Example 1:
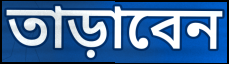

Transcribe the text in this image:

তাড়াবেন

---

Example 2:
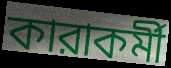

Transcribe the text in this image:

কারাকর্মী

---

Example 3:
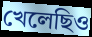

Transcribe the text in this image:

খেলেছিও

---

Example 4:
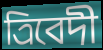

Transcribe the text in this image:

ত্রিবেদী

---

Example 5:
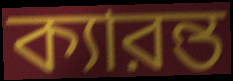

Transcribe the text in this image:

ক্যারন্ত